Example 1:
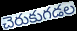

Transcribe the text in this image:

చెరుకుగడల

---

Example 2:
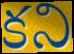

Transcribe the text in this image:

కని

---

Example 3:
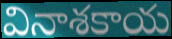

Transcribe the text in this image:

వినాశకాయ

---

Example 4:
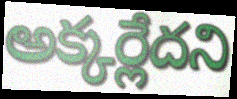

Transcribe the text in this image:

అక్కర్లేదని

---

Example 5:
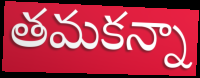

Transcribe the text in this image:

తమకన్నా